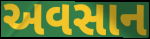
અવસાન